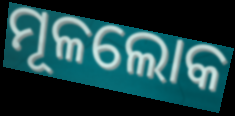
ମୂଳଲୋକ